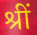
श्रीं